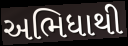
અભિધાથી